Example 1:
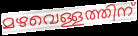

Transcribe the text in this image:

മഴവെള്ളത്തിന്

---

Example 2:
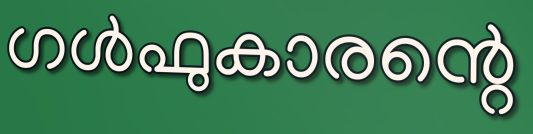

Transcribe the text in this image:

ഗൾഫുകാരന്റെ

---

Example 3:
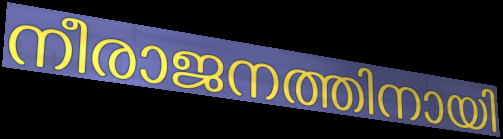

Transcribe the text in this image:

നീരാജനത്തിനായി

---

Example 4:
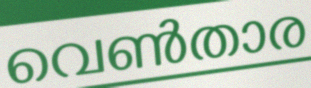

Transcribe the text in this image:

വെൺതാര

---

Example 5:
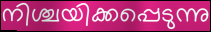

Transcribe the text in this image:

നിശ്ചയിക്കപ്പെടുന്നു